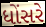
ધોંસરે